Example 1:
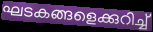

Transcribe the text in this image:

ഘടകങ്ങളെക്കുറിച്ച്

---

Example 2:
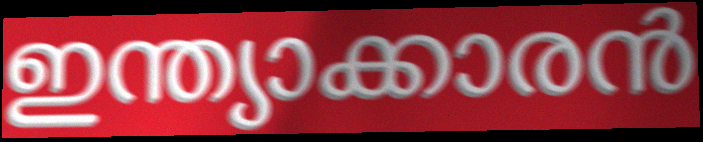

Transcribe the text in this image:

ഇന്ത്യാക്കാരൻ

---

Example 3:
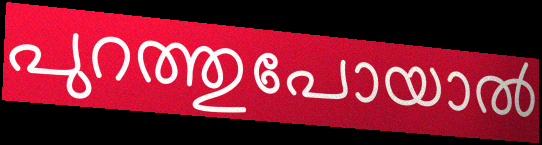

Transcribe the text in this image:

പുറത്തുപോയാൽ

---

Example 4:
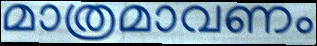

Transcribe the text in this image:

മാത്രമാവണം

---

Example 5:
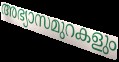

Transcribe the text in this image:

അഭ്യാസമുറകളും